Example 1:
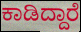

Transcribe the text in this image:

ಕಾಡಿದ್ದಾರೆ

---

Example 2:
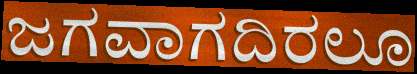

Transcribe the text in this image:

ಜಗವಾಗದಿರಲೂ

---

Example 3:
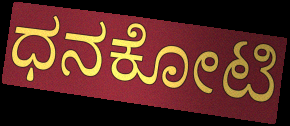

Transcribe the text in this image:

ಧನಕೋಟಿ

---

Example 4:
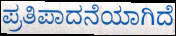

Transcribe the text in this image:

ಪ್ರತಿಪಾದನೆಯಾಗಿದೆ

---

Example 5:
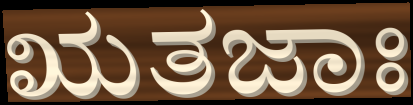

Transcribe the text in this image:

ಋತಜಾಃ